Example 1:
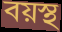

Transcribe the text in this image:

বয়স্থ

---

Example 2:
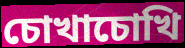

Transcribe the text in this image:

চোখাচোখি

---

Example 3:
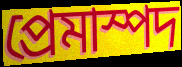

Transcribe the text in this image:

প্রেমাস্পদ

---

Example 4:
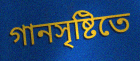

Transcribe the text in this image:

গানসৃষ্টিতে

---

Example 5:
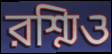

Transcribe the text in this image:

রশ্মিও